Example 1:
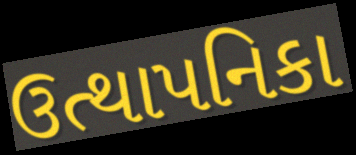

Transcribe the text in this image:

ઉત્થાપનિકા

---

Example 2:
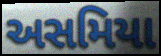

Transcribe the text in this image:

અસમિયા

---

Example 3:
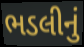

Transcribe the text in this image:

ભડલીનું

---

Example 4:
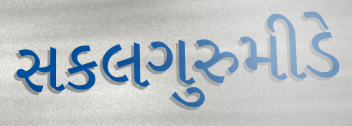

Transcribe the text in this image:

સકલગુરુમીડે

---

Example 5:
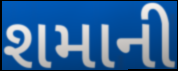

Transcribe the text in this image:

શમાની